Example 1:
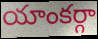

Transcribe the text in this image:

యాంకర్గా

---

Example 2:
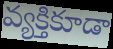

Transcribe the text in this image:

వ్యక్తికూడా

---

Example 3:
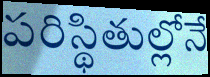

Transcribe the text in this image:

పరిస్థితుల్లోనే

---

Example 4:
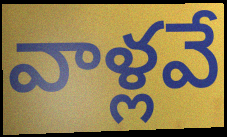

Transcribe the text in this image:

వాళ్లవే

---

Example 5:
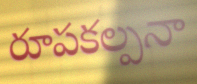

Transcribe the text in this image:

రూపకల్పనా